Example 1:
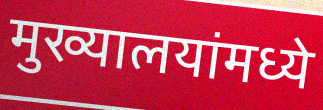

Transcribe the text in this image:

मुख्यालयांमध्ये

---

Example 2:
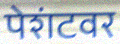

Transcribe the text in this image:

पेशंटवर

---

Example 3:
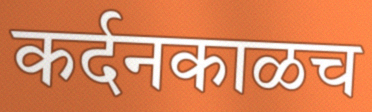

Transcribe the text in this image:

कर्दनकाळच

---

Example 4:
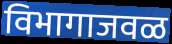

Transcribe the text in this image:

विभागाजवळ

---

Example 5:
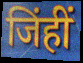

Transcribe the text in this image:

जिंहीं